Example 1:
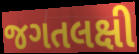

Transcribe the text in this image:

જગતલક્ષી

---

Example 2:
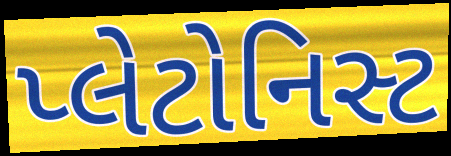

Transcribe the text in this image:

પ્લેટોનિસ્ટ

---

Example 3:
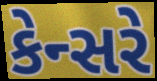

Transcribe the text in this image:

કેન્સરે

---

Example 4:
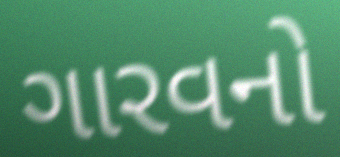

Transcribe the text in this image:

ગારવનો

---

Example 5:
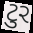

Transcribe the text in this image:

ટુર